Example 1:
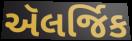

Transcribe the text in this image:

ઍલર્જિક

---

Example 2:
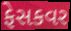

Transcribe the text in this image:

ફેસકવર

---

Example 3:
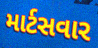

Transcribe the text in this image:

માર્ટસવાર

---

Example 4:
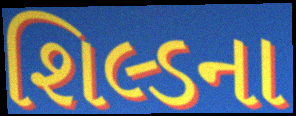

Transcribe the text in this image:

શિલ્ડના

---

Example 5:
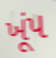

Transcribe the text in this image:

ખૂંપ